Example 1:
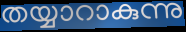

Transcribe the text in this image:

തയ്യാറാകുന്നു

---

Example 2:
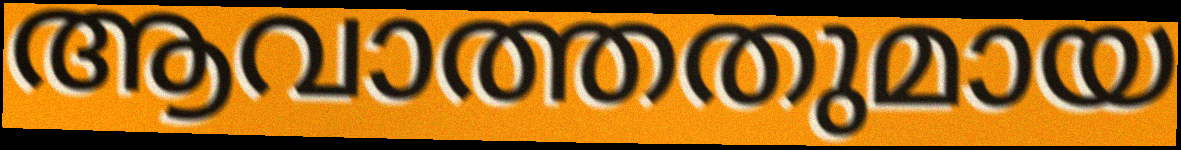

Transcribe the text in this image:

ആവാത്തതുമായ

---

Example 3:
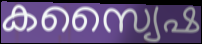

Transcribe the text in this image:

കസ്യൈഷ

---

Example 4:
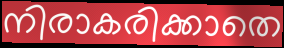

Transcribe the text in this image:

നിരാകരിക്കാതെ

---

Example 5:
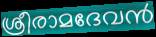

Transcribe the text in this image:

ശ്രീരാമദേവൻ